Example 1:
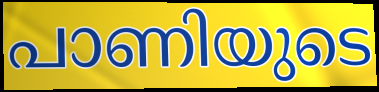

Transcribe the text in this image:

പാണിയുടെ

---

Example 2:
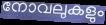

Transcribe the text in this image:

നോവലുകളും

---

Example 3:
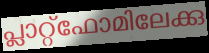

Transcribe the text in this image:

പ്ലാറ്റ്ഫോമിലേക്കു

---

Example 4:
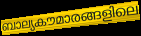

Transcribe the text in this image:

ബാല്യകൗമാരങ്ങളിലെ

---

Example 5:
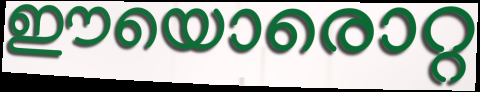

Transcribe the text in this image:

ഈയൊരൊറ്റ